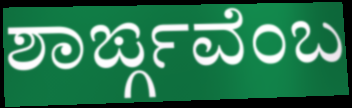
ಶಾರ್ಙ್ಗವೆಂಬ